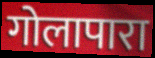
गोलापारा